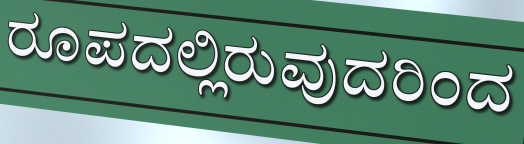
ರೂಪದಲ್ಲಿರುವುದರಿಂದ